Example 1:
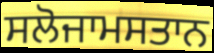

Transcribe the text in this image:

ਸਲੋਜਾਮਸਤਾਨ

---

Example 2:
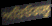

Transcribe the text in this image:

ਅਰਿਓਗਲੂ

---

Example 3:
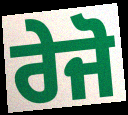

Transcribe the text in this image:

ਰੇਜੋ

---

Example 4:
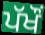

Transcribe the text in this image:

ਪੱਖੌਂ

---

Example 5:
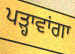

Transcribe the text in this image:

ਪੜ੍ਹਾਵਾਂਗਾ